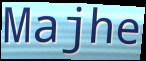
Majhe